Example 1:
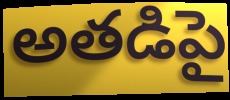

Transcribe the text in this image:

అతడిపై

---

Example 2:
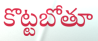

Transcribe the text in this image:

కొట్టబోతూ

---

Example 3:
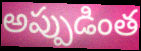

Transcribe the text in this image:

అప్పుడింత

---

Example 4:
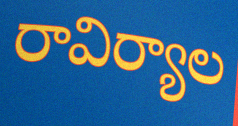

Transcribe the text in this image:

రావిర్యాల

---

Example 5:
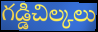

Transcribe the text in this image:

గడ్డిచిల్కలు